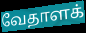
வேதாளக்